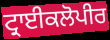
ਟ੍ਰਾਈਕਲੋਪੀਰ